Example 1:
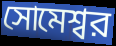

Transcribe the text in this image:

সোমেশ্বর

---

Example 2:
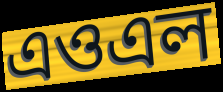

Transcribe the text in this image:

এওএল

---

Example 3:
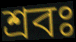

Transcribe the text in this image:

শ্রবঃ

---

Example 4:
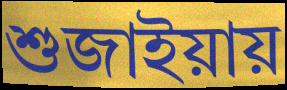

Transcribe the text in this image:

শুজাইয়ায়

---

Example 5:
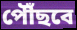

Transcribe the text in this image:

পৌঁছবে